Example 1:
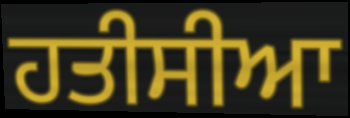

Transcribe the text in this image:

ਹਤੀਸੀਆ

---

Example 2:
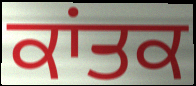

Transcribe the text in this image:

ਕਾਂਤਕ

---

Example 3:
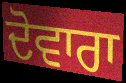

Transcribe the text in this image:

ਦੋਵਾਰਾ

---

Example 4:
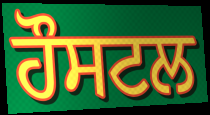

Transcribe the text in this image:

ਹੌਸਟਲ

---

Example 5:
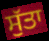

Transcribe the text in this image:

ਸੁੱਤਾ